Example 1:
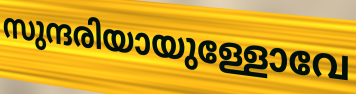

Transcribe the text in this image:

സുന്ദരിയായുള്ളോവേ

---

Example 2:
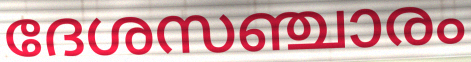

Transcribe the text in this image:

ദേശസഞ്ചാരം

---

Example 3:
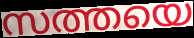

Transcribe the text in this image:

സത്തയെ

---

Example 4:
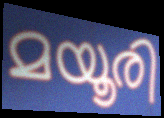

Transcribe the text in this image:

മയൂരി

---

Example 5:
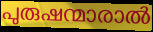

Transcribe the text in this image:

പുരുഷന്മാരാൽ